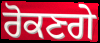
ਰੋਕਣਗੇ